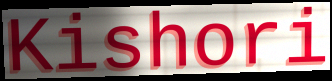
Kishori